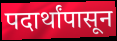
पदार्थांपासून